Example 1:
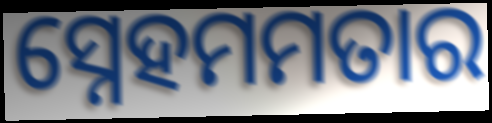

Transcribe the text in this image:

ସ୍ନେହମମତାର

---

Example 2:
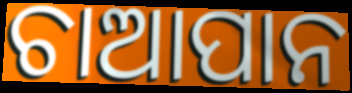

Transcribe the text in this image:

ଚାଆପାନ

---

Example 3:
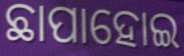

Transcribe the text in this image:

ଛାପାହୋଇ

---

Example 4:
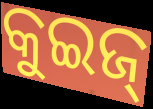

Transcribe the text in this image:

କୁଇଜ୍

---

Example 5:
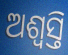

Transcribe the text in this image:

ଅଶ୍ୱସ୍ତି